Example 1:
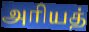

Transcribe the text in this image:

அரியத்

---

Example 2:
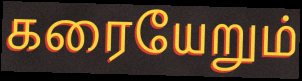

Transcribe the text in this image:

கரையேறும்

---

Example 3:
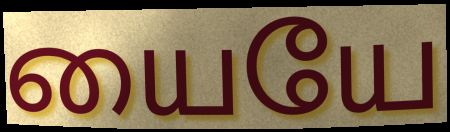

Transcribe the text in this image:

யையே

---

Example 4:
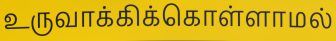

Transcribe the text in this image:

உருவாக்கிக்கொள்ளாமல்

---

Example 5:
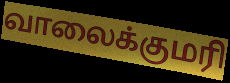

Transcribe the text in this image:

வாலைக்குமரி